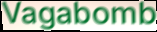
Vagabomb